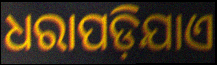
ଧରାପଡ଼ିଯାଏ